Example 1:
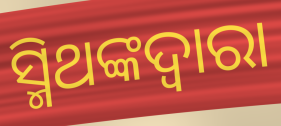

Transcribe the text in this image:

ସ୍ମିଥଙ୍କଦ୍ୱାରା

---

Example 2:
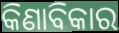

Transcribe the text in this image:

କିଣାବିକାର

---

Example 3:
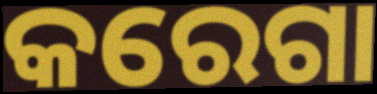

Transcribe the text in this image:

କରେଗା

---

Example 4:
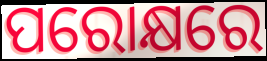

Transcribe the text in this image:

ପରୋକ୍ଷରେ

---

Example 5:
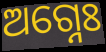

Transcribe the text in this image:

ଅଗ୍ନେଃ